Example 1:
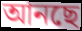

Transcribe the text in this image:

আনছে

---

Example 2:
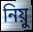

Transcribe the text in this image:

নিয়ু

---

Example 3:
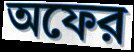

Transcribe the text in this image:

অফের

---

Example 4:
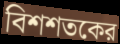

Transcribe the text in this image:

বিশশতকের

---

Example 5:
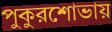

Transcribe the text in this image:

পুকুরশোভায়